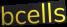
bcells